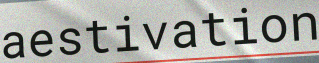
aestivation